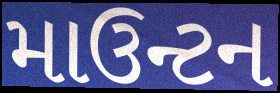
માઉન્ટન